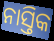
ନାସ୍ତିକ